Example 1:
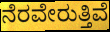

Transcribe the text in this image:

ನೆರವೇರುತ್ತಿವೆ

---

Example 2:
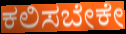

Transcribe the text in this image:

ಕಲಿಸಬೇಕೇ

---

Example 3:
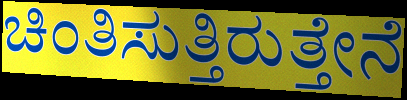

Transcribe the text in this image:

ಚಿಂತಿಸುತ್ತಿರುತ್ತೇನೆ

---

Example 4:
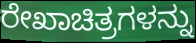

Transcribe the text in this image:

ರೇಖಾಚಿತ್ರಗಳನ್ನು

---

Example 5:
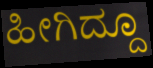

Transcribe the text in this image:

ಹೀಗಿದ್ದೂ